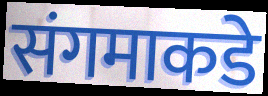
संगमाकडे